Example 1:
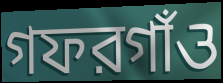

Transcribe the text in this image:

গফরগাঁও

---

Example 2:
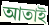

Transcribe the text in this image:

আতাই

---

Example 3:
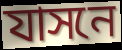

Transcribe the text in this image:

যাসনে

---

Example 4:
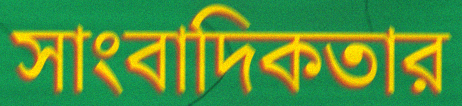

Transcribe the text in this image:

সাংবাদিকতার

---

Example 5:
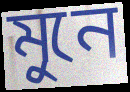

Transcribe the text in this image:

মুনে